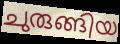
ചുരുങ്ങിയ